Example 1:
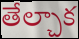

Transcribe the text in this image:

తేల్చాక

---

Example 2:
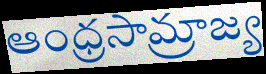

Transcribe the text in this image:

ఆంధ్రసామ్రాజ్య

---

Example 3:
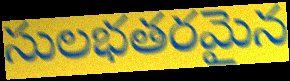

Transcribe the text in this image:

సులభతరమైన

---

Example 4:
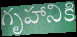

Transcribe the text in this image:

గృహానికి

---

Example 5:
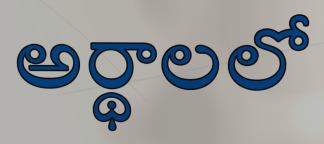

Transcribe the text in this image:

అర్థాలలో